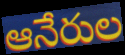
ఆనేరుల